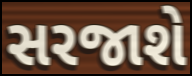
સરજાશે